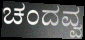
ಚಂದವ್ವ